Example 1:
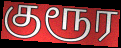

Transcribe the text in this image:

குரூர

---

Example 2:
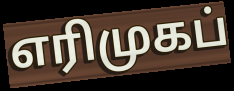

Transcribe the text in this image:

எரிமுகப்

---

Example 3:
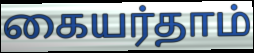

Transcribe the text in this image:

கையர்தாம்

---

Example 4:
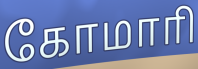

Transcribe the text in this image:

கோமாரி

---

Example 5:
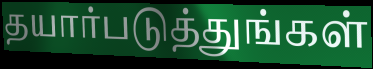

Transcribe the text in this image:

தயார்படுத்துங்கள்